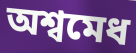
অশ্বমেধ